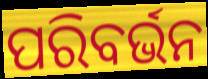
ପରିବର୍ଭନ